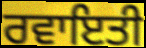
ਰਵਾਇਤੀ